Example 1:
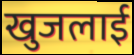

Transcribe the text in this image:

खुजलाई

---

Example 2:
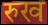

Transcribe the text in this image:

रुख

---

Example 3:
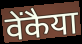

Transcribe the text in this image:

वेंकैया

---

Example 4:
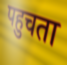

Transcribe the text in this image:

पहुचता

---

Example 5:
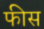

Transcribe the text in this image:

फीस